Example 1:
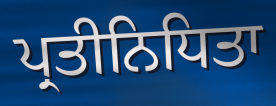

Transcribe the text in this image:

ਪ੍ਰਤੀਨਿਧਿਤਾ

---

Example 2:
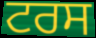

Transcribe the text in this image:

ਟਰਸ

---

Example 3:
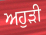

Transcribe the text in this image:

ਅਹੁੜੀ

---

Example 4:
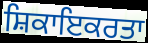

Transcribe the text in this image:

ਸ਼ਿਕਾਇਕਰਤਾ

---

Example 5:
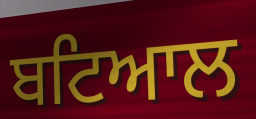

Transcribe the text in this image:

ਬਟਿਆਲ